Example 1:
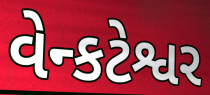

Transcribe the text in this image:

વેન્કટેશ્વર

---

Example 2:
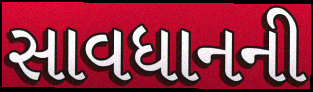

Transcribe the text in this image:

સાવધાનની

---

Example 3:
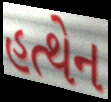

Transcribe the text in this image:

હત્થેન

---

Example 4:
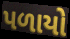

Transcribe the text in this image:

પળાયો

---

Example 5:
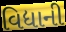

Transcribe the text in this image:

વિદ્યાની